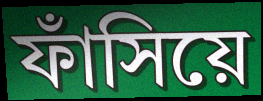
ফাঁসিয়ে